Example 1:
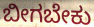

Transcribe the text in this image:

ಬೀಗಬೇಕು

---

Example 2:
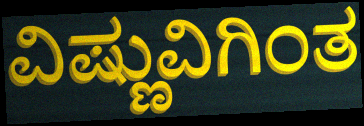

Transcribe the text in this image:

ವಿಷ್ಣುವಿಗಿಂತ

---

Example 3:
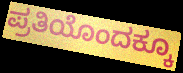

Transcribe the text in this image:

ಪ್ರತಿಯೊಂದಕ್ಕೂ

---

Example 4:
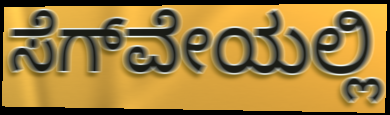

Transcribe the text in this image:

ಸೆಗ್‌ವೇಯಲ್ಲಿ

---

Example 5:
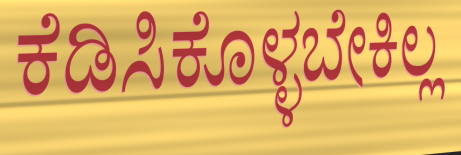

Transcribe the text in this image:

ಕೆಡಿಸಿಕೊಳ್ಳಬೇಕಿಲ್ಲ